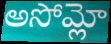
అసోమ్లో